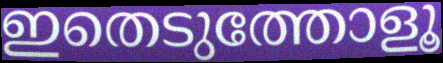
ഇതെടുത്തോളൂ